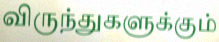
விருந்துகளுக்கும்